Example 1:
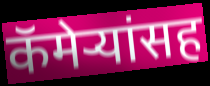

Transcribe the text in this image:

कॅमेऱ्यांसह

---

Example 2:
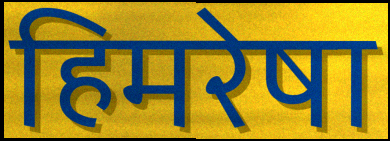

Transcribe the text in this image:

हिमरेषा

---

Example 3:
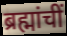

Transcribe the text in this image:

ब्रह्मांचीं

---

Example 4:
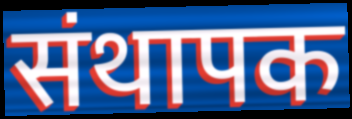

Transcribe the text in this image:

संथापक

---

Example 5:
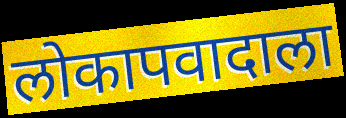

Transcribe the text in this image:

लोकापवादाला